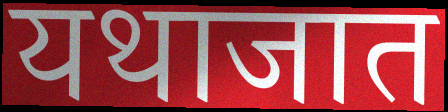
यथाजात